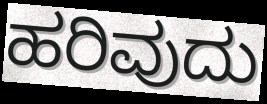
ಹರಿವುದು